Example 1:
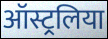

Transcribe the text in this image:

ऑस्ट्रलिया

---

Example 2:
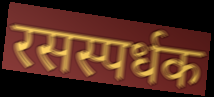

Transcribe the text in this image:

रसस्पर्धक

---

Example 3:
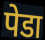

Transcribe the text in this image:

पेडा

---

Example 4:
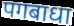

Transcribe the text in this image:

पगबाधा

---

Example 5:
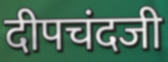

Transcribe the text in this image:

दीपचंदजी